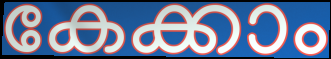
കേക്കാം